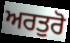
ਅਰਤੁਰੋ